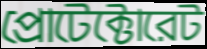
প্রোটেক্টোরেট